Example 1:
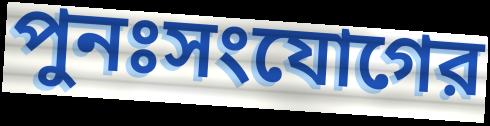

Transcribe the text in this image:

পুনঃসংযোগের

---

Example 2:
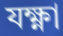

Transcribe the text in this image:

যক্ষ্ণা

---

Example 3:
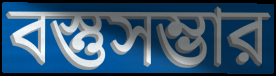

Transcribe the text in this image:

বস্তুসম্ভার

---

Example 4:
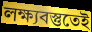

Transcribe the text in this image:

লক্ষ্যবস্তুতেই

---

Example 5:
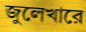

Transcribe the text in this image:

জুলেখারে